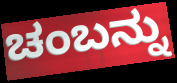
ಚಂಬನ್ನು